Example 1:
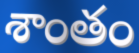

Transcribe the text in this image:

శాంతం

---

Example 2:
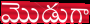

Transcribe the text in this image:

మొడుగా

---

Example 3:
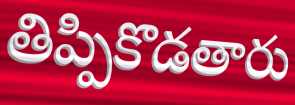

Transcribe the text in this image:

తిప్పికొడతారు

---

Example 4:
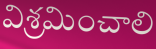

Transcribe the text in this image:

విశ్రమించాలి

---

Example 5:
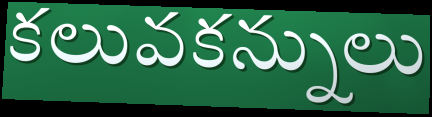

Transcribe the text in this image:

కలువకన్నులు